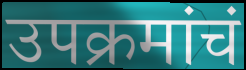
उपक्रमांचं